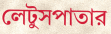
লেটুসপাতার